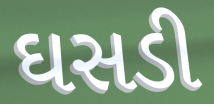
ઘસડી